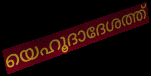
യെഹൂദാദേശത്ത്